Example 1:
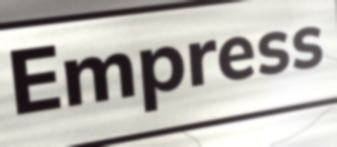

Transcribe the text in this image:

Empress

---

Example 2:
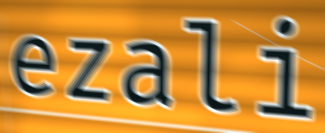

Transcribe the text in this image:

ezali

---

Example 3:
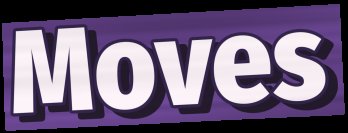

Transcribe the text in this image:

Moves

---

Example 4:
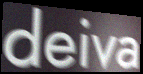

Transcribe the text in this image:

deiva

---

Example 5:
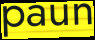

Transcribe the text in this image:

paun